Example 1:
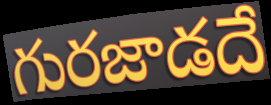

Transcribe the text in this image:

గురజాడదే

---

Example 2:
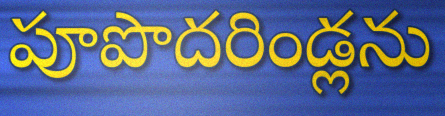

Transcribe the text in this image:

పూపొదరిండ్లను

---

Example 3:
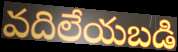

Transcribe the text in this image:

వదిలేయబడి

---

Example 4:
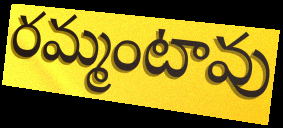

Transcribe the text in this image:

రమ్మంటావు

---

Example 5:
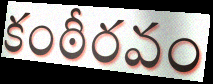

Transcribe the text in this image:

కంఠీరవం